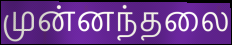
முன்னந்தலை